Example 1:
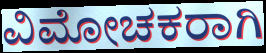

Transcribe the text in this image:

ವಿಮೋಚಕರಾಗಿ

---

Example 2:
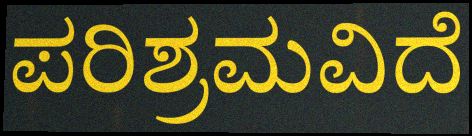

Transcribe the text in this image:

ಪರಿಶ್ರಮವಿದೆ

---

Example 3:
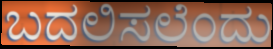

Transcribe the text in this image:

ಬದಲಿಸಲೆಂದು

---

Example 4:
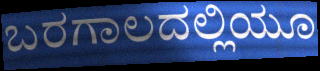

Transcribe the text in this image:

ಬರಗಾಲದಲ್ಲಿಯೂ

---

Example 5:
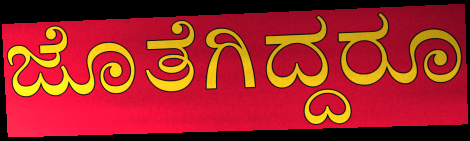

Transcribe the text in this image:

ಜೊತೆಗಿದ್ದರೂ